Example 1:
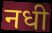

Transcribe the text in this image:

नधी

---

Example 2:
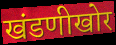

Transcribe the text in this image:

खंडणीखोर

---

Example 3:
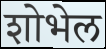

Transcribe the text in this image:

शोभेल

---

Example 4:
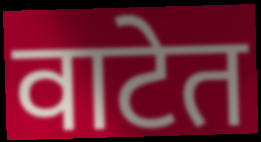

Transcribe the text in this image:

वाटेत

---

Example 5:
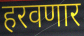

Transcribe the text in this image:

हरवणार